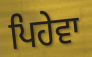
ਪਿਹੇਵਾ